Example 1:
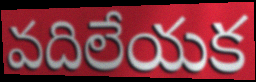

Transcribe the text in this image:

వదిలేయక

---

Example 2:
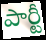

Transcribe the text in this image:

పార్టీ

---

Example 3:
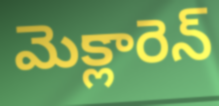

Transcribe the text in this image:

మెక్లారెన్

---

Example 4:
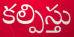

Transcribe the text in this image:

కల్పిస్తు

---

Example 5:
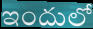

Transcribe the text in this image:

ఇందులో